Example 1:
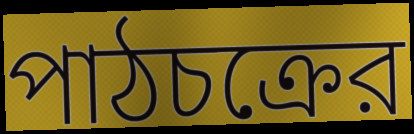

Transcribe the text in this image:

পাঠচক্রের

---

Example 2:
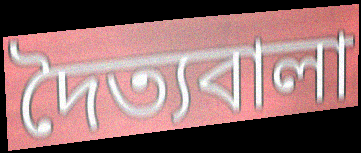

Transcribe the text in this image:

দৈত্যবালা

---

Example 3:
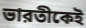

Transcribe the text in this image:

ভারতীকেই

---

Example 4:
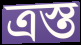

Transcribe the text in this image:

ত্রস্ত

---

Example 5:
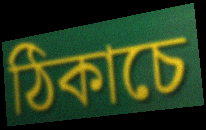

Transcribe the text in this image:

ঠিকাচে